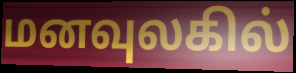
மனவுலகில்